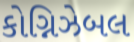
કોગ્નિઝેબલ